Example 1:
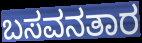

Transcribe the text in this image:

ಬಸವನತಾರ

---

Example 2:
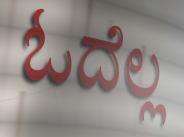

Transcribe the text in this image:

ಓದೆಲ್ಲ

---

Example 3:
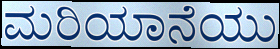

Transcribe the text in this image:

ಮರಿಯಾನೆಯು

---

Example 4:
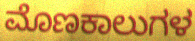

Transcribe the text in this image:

ಮೊಣಕಾಲುಗಳ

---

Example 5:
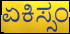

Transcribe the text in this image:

ಏಕಿಸ್ಸಂ